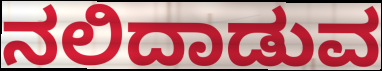
ನಲಿದಾಡುವ